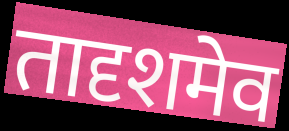
तादृशमेव